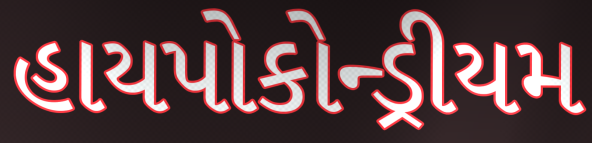
હાયપોકોન્ડ્રીયમ